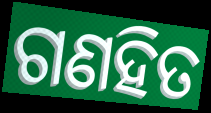
ଗଣହିତ